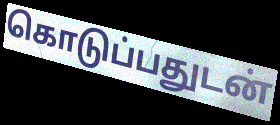
கொடுப்பதுடன்